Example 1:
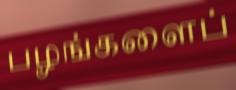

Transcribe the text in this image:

பழங்களைப்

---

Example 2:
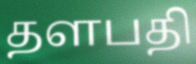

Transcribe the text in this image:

தளபதி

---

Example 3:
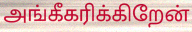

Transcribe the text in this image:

அங்கீகரிக்கிறேன்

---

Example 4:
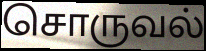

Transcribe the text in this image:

சொருவல்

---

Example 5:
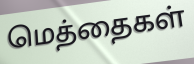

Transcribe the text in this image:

மெத்தைகள்